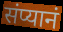
संप्यानं